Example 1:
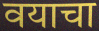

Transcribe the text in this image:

वयाचा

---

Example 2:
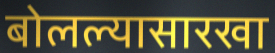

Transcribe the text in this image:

बोलल्यासारखा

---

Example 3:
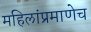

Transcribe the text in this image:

महिलांप्रमाणेच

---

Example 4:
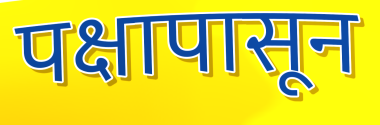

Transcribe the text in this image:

पक्षापासून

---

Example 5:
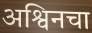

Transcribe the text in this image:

अश्विनचा